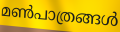
മൺപാത്രങ്ങൾ